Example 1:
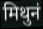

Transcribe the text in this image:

मिथुनं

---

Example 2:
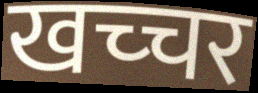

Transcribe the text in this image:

खच्‍चर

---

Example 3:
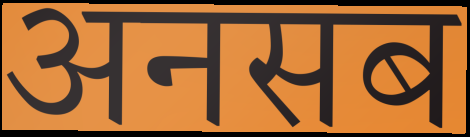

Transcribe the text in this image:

अनसब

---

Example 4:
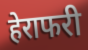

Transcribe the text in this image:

हेराफरी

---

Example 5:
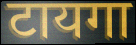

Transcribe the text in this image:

टायगा